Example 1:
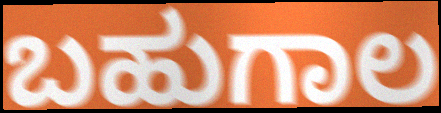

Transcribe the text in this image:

ಬಹುಗಾಲ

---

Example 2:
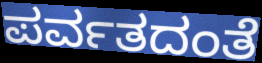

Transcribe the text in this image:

ಪರ್ವತದಂತೆ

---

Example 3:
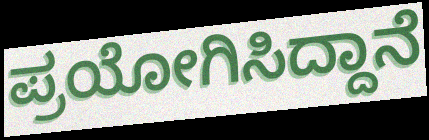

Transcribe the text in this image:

ಪ್ರಯೋಗಿಸಿದ್ದಾನೆ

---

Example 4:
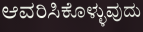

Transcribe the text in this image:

ಆವರಿಸಿಕೊಳ್ಳುವುದು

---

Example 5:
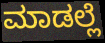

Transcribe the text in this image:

ಮಾಡಲ್ಲೆ